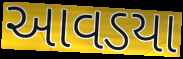
આવડયા